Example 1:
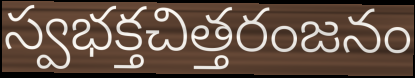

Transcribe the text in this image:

స్వభక్తచిత్తరంజనం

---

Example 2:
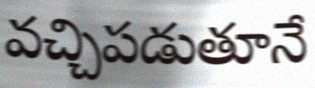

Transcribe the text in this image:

వచ్చిపడుతూనే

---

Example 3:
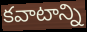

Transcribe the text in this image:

కవాటాన్ని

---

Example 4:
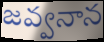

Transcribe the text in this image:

జవ్వనాన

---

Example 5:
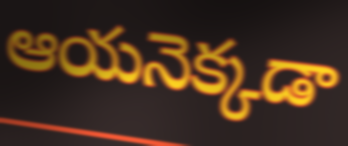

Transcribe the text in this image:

ఆయనెక్కడా